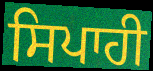
ਸਿਪਾਹੀ